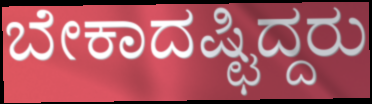
ಬೇಕಾದಷ್ಟಿದ್ದರು